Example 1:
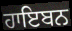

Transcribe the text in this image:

ਹਾਇਬਨ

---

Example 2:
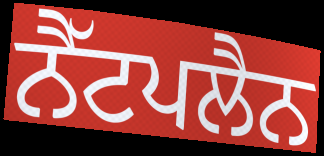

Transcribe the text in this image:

ਨੈੱਟਪਲੈਨ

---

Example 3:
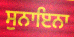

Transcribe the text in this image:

ਸੁਨਾਇਨਾ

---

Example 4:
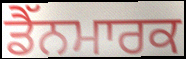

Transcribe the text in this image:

ਡੈੱਨਮਾਰਕ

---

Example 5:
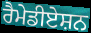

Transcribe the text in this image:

ਰੈਮੇਡੀਏਸ਼ਨ